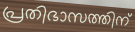
പ്രതിഭാസത്തിന്